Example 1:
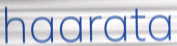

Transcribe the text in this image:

haarata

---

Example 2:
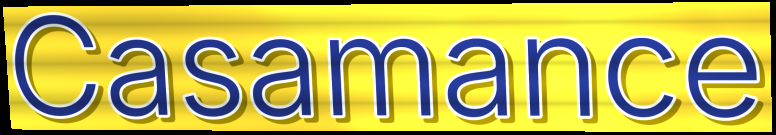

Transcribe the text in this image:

Casamance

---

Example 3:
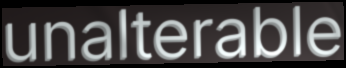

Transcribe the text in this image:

unalterable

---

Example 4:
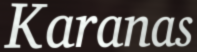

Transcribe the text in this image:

Karanas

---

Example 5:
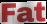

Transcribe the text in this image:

Fat